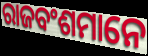
ରାଜବଂଶମାନେ